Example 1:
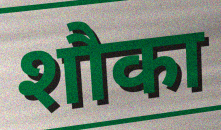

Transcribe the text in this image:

शौका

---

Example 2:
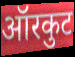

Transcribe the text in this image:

ऑरकुट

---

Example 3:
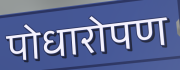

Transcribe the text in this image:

पोधारोपण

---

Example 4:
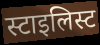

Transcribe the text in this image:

स्टाइलिस्ट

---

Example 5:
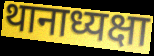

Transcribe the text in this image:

थानाध्यक्षा